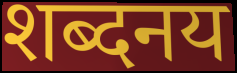
शब्दनय